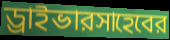
ড্রাইভারসাহেবের